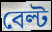
বেল্ট